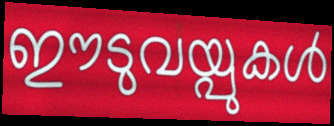
ഈടുവയ്പുകൾ